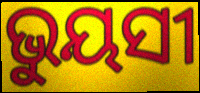
ଭୁୟସୀ